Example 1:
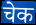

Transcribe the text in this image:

चेक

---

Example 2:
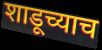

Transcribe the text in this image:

शाडूच्याच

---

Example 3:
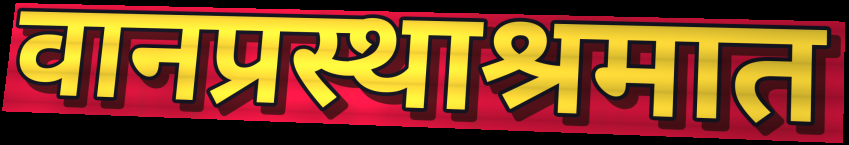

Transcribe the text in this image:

वानप्रस्थाश्रमात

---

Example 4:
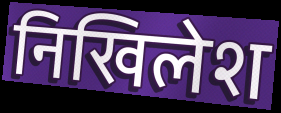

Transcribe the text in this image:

निखिलेश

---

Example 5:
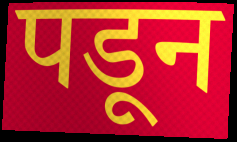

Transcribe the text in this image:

पडून